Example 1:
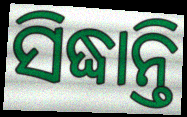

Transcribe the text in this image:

ସିଦ୍ଧାନ୍ତି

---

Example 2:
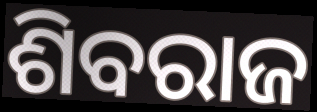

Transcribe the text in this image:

ଶିବରାଜ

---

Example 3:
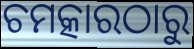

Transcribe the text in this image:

ଚମତ୍କାରଠାରୁ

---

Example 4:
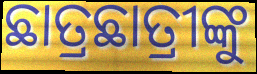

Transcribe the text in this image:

ଛାତ୍ରଛାତ୍ରୀଙ୍କୁ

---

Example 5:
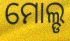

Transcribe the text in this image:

ମୋଲ୍ଡ